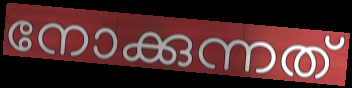
നോക്കുന്നത്